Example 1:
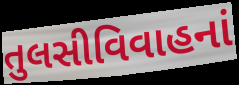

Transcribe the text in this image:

તુલસીવિવાહનાં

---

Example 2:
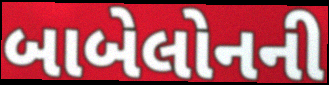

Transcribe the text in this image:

બાબેલોનની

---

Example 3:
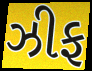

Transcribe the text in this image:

ઝીફ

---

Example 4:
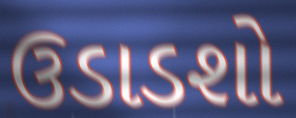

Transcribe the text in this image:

ઉડાડશો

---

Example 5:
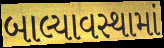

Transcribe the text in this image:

બાલ્યાવસ્થામાં